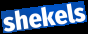
shekels